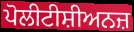
ਪੋਲੀਟੀਸ਼ੀਅਨਜ਼